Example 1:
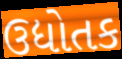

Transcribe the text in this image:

ઉદ્યોતક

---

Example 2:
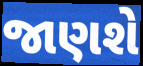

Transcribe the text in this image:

જાણશે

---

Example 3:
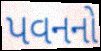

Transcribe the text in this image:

પવનનો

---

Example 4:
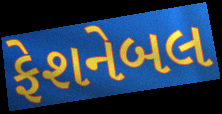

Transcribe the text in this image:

ફેશનેબલ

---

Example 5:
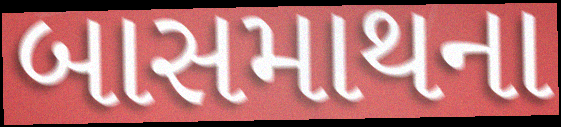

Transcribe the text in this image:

બાસમાથના